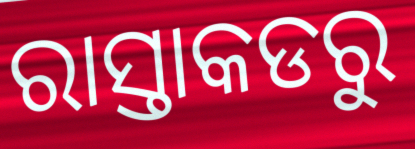
ରାସ୍ତାକଡରୁ